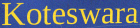
Koteswara